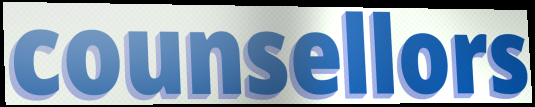
counsellors